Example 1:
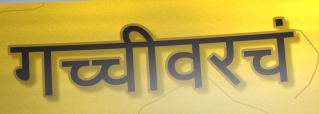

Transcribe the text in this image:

गच्चीवरचं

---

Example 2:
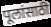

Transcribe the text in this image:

पूलांसाठी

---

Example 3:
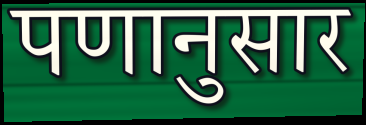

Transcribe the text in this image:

पणानुसार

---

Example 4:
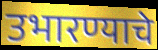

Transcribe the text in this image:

उभारण्याचे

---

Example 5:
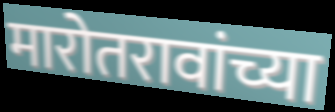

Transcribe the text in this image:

मारोतरावांच्या